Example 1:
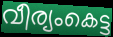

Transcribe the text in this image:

വീര്യംകെട്ട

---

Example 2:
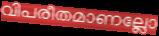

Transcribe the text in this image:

വിപരീതമാണല്ലോ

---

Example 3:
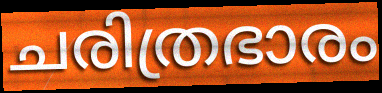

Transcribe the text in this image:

ചരിത്രഭാരം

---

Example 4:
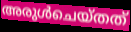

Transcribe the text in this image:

അരുൾചെയ്തത്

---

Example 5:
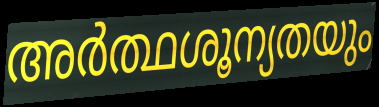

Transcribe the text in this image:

അർത്ഥശൂന്യതയും